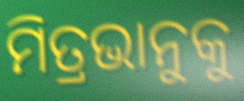
ମିତ୍ରଭାନୁକୁ